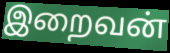
இறைவன்